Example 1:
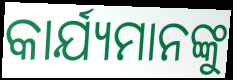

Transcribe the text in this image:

କାର୍ଯ୍ୟମାନଙ୍କୁ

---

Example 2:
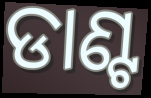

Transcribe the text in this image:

ଡାଣ୍ଟ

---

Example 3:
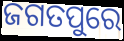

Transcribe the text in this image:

ଜଗତପୁରେ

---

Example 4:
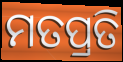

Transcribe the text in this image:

ମତପ୍ରତି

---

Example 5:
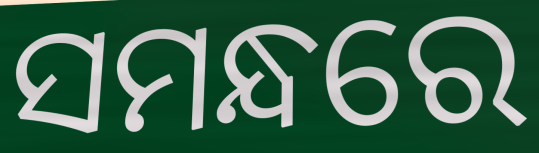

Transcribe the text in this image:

ସମନ୍ଧରେ